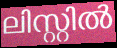
ലിസ്റ്റിൽ